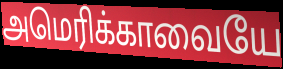
அமெரிக்காவையே